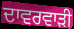
ਦਾਵਰਵਾੜੀ